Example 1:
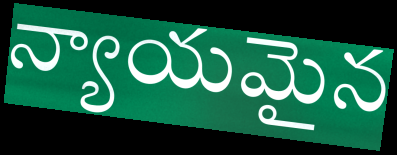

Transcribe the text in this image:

న్యాయమైన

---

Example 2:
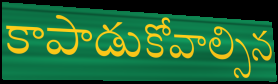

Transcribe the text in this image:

కాపాడుకోవాల్సిన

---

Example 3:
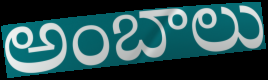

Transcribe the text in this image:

అంబాలు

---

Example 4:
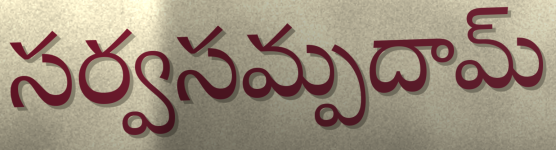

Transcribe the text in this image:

సర్వసమ్పదామ్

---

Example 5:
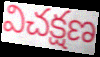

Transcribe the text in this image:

విచక్షణ